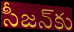
సీజన్‌కు